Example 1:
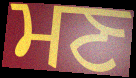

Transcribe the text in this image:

ਮਣ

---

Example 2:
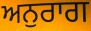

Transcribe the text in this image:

ਅਨੁਰਾਗ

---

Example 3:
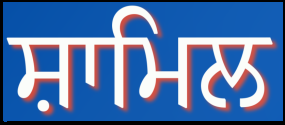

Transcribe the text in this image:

ਸ਼ਾਮਿਲ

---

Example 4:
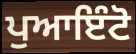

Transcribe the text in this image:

ਪੁਆਇੰਟੋ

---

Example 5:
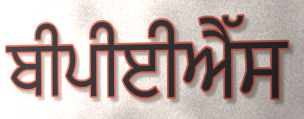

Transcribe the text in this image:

ਬੀਪੀਈਐੱਸ